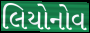
લિયોનોવ